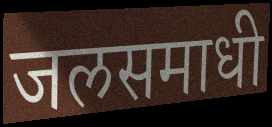
जलसमाधी